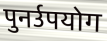
पुनर्उपयोग